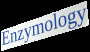
Enzymology